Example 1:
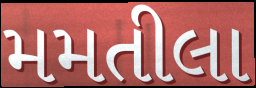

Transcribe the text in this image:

મમતીલા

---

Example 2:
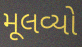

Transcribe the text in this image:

મૂલવ્યો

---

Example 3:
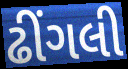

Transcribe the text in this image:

ઢીંગલી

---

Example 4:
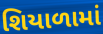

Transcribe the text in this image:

શિયાળામાં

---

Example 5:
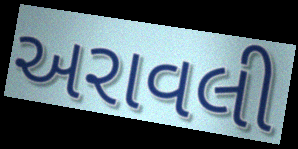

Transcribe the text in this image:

અરાવલી